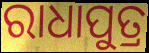
ରାଧାପୁତ୍ର